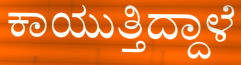
ಕಾಯುತ್ತಿದ್ದಾಳೆ